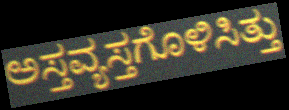
ಅಸ್ತವ್ಯಸ್ತಗೊಳಿಸಿತ್ತು